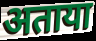
अताया